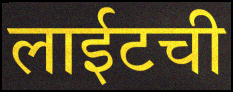
लाईटची